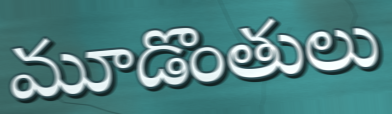
మూడొంతులు